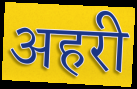
अहरी